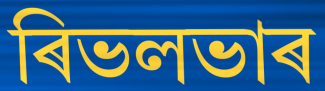
ৰিভলভাৰ